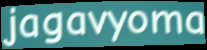
jagavyoma